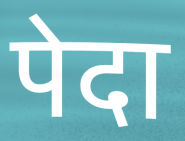
पेदा